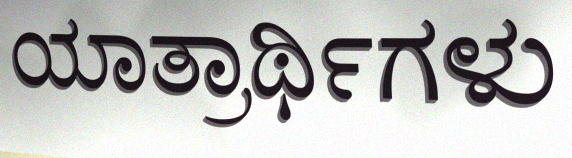
ಯಾತ್ರಾರ್ಥಿಗಳು